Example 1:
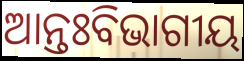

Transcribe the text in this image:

ଆନ୍ତଃବିଭାଗୀୟ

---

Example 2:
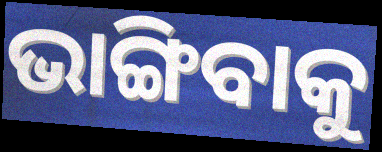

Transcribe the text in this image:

ଭାଙ୍ଗିବାକୁ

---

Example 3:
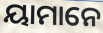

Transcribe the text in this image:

ୟାମାନେ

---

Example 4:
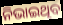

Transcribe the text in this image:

ନିଭାଇଥିବ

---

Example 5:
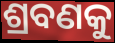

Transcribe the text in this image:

ଶ୍ରବଣକୁ